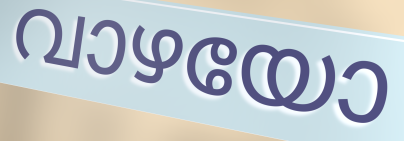
വാഴയോ